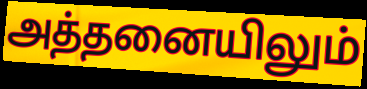
அத்தனையிலும்